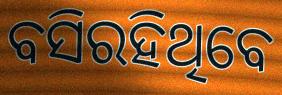
ବସିରହିଥିବେ